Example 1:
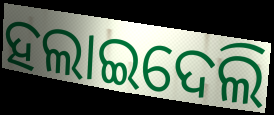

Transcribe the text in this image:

ହଲାଇଦେଲି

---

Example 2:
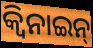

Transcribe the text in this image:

କ୍ୱିନାଇନ୍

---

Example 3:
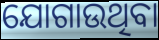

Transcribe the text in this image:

ଯୋଗାଉଥିବା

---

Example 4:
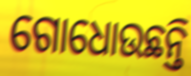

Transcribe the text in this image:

ଗୋଧୋଉଛନ୍ତି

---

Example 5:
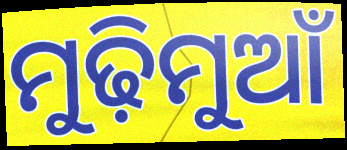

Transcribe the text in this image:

ମୁଢ଼ିମୁଆଁ